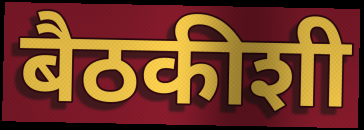
बैठकीशी